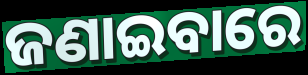
ଜଣାଇବାରେ